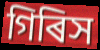
গিৰিস